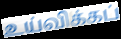
உய்விக்கப்